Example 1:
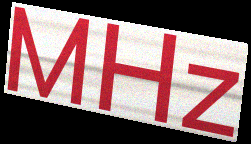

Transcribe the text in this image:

MHz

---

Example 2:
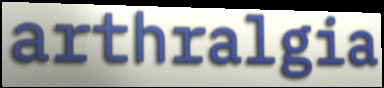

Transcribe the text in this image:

arthralgia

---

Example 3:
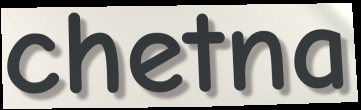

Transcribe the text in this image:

chetna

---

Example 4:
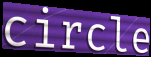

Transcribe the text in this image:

circle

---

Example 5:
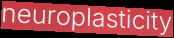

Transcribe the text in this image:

neuroplasticity